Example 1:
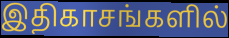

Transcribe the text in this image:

இதிகாசங்களில்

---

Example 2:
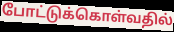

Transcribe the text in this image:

போட்டுக்கொள்வதில்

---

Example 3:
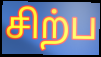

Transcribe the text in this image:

சிற்ப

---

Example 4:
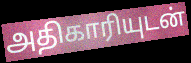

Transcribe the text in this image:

அதிகாரியுடன்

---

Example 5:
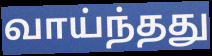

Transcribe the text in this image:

வாய்ந்தது